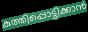
കുത്തിപ്പൊട്ടിക്കാൻ